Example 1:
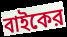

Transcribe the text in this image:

বাইকের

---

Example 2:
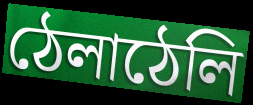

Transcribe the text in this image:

ঠেলাঠেলি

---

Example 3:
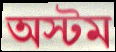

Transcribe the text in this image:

অস্টম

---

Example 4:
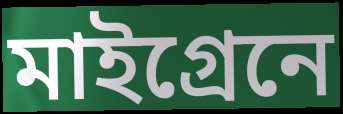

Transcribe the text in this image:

মাইগ্রেনে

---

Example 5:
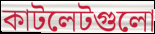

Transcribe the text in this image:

কাটলেটগুলো